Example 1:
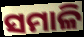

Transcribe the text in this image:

ସମାଳି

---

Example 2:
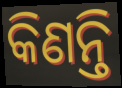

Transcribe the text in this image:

କିଣନ୍ତି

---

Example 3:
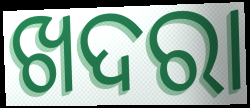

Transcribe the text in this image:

ଖଦରା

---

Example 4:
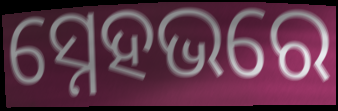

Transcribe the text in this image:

ସ୍ନେହଭରେ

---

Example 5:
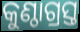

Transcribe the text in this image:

କୁଣ୍ଠାଗ୍ରସ୍ତ